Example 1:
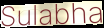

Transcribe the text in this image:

Sulabha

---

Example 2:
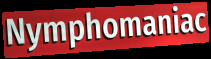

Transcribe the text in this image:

Nymphomaniac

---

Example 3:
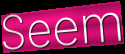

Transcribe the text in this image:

Seem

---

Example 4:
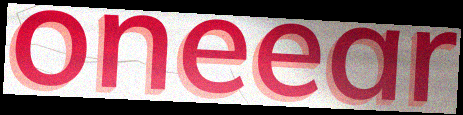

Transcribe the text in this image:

oneear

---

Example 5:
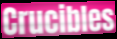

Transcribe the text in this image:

Crucibles